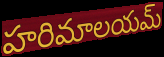
హరిమాలయమ్